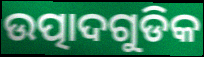
ଉତ୍ପାଦଗୁଡିକ